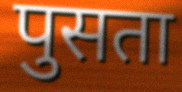
पुसता